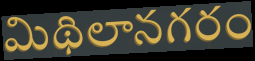
మిథిలానగరం